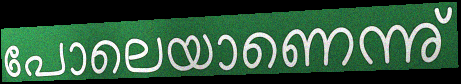
പോലെയാണെന്നു്